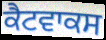
ਕੈਟਵਾਕਸ